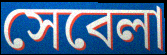
সেবেলা